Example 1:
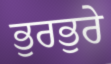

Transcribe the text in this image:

ਭੁਰਭੁਰੇ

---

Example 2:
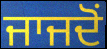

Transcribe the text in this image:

ਜਾਜਦੋਂ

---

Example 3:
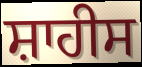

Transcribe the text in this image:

ਸ਼ਾਹੀਸ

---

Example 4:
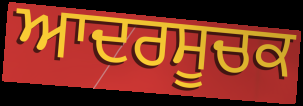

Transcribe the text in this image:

ਆਦਰਸੂਚਕ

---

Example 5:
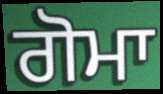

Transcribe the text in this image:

ਗੋਮਾ